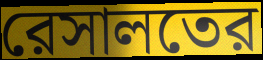
রেসালতের